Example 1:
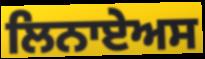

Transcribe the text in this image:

ਲਿਨਾਏਅਸ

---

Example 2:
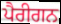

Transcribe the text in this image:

ਪੈਰੀਗਨ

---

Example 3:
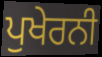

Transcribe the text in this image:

ਪੁਖੇਰਨੀ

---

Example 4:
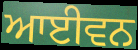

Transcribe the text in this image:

ਆਈਵਨ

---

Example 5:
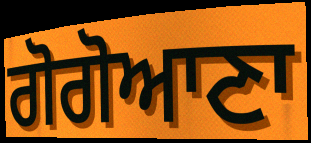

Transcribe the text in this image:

ਗੋਗੋਆਣਾ